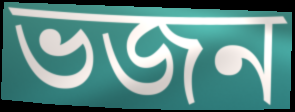
ভজন